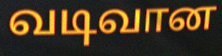
வடிவான